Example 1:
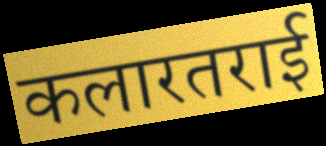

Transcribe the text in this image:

कलारतराई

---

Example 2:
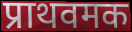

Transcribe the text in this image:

प्राथवमक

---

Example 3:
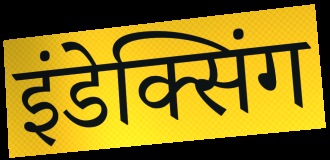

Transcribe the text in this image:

इंडेक्सिंग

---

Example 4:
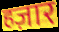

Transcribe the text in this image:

हज़ार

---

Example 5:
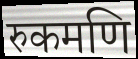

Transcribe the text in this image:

रुकमणि